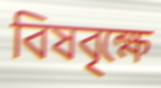
বিষবৃক্ষে